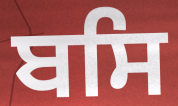
ਬਸਿ